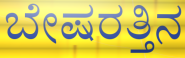
ಬೇಷರತ್ತಿನ